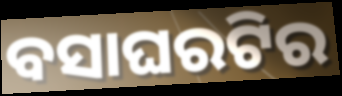
ବସାଘରଟିର